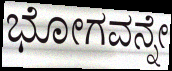
ಭೋಗವನ್ನೇ